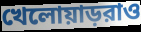
খেলোয়াড়রাও